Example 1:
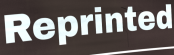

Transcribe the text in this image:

Reprinted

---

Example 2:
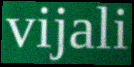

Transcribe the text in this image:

vijali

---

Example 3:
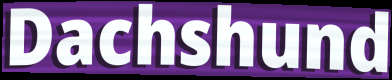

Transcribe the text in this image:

Dachshund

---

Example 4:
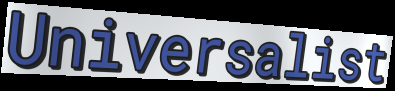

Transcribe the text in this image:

Universalist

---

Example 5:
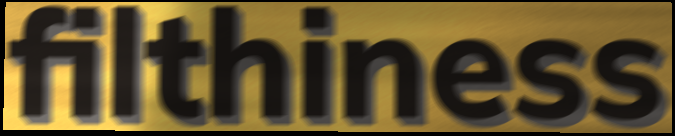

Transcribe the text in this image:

filthiness